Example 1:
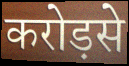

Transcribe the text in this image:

करोड़से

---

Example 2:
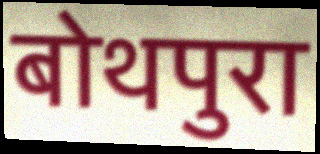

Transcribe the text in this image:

बोथपुरा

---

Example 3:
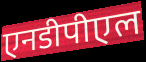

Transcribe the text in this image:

एनडीपीएल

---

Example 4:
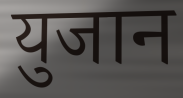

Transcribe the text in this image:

युजान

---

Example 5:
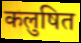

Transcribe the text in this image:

कलुषित